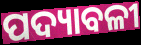
ପଦ୍ୟାବଳୀ